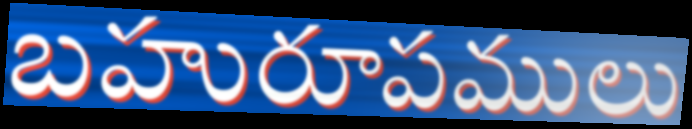
బహురూపములు